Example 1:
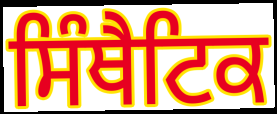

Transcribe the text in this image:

ਸਿੰਥੈਟਿਕ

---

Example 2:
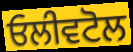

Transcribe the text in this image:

ਓਲੀਵਟੋਲ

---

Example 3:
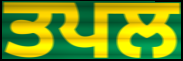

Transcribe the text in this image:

ਤਪਲ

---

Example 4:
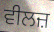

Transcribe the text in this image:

ਵੀਲਜ਼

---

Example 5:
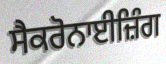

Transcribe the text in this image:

ਸੈਕਰੋਨਾਈਜ਼ਿੰਗ